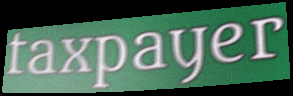
taxpayer